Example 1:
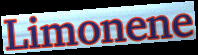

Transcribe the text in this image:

Limonene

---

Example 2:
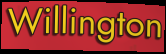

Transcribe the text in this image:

Willington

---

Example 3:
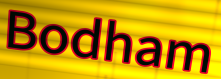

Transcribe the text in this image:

Bodham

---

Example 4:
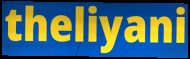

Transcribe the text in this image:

theliyani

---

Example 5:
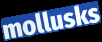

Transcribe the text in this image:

mollusks